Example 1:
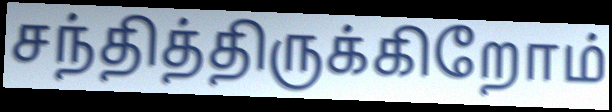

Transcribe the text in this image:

சந்தித்திருக்கிறோம்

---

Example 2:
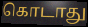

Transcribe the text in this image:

கொடாது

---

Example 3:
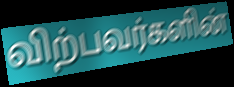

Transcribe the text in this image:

விற்பவர்களின்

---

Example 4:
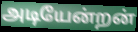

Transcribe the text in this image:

அடியேன்றன்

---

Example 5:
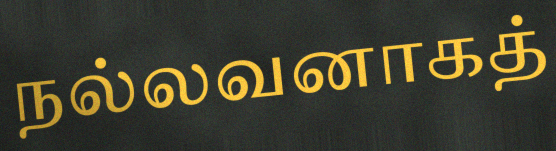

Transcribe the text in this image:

நல்லவனாகத்